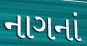
નાગનાં